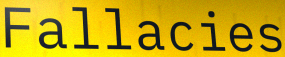
Fallacies